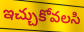
ఇచ్చుకోవలసి